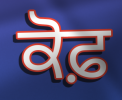
ਕੋਫ਼